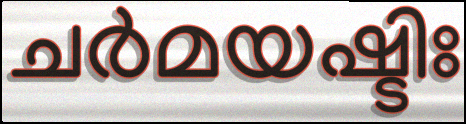
ചർമയഷ്ടിഃ